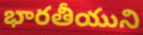
భారతీయుని